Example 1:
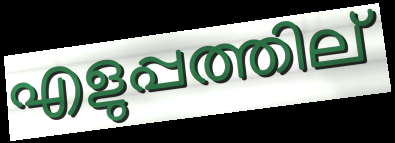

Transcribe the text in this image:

എളുപ്പത്തില്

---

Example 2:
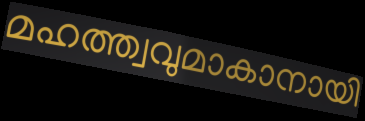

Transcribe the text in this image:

മഹത്ത്വവുമാകാനായി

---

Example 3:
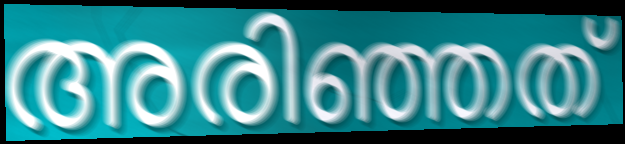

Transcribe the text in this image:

അരിഞ്ഞത്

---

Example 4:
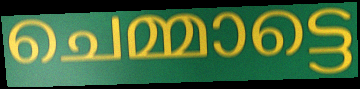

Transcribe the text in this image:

ചെമ്മാട്ടെ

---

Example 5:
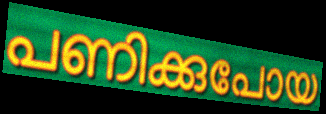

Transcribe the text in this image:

പണിക്കുപോയ